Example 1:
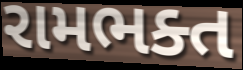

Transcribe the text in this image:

રામભક્ત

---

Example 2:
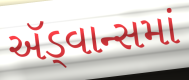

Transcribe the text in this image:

ઍડ્વાન્સમાં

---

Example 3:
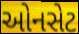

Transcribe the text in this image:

ઓનસેટ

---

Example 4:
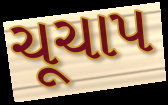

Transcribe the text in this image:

ચૂચાપ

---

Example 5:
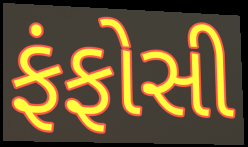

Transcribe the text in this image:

ફંફોસી